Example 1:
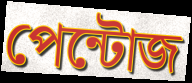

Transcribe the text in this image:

পেন্টোজ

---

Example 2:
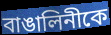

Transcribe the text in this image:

বাঙালিনীকে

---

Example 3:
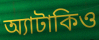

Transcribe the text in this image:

অ্যাটাকিও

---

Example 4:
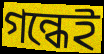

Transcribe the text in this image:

গন্ধেই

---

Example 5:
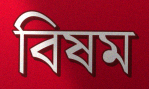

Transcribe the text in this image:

বিষম